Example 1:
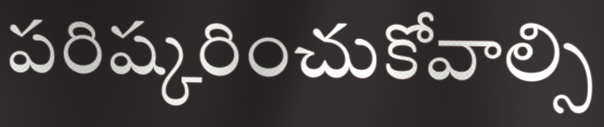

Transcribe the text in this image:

పరిష్కరించుకోవాల్సి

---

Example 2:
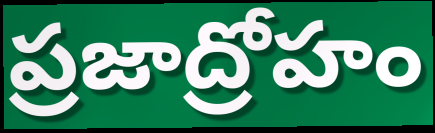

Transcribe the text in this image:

ప్రజాద్రోహం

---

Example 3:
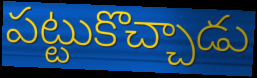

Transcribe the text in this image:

పట్టుకొచ్చాడు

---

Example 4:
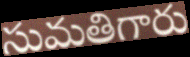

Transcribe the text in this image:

సుమతిగారు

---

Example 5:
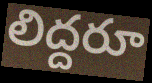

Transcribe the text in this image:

లిద్దరూ